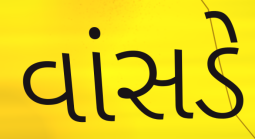
વાંસડે